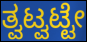
ತ್ವಟ್ವಟ್ಟೇ